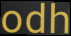
odh